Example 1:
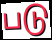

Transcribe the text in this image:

படு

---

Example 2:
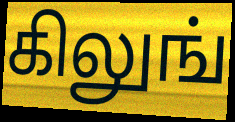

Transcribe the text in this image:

கிலுங்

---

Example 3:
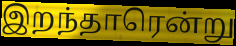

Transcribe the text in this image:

இறந்தாரென்று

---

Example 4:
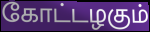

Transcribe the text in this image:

கோட்டழகும்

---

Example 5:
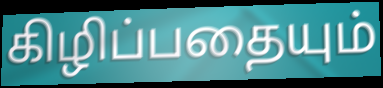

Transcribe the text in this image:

கிழிப்பதையும்